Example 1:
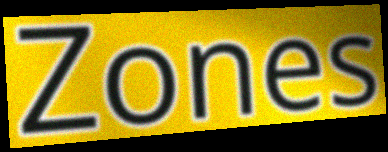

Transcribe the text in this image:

Zones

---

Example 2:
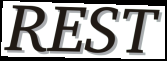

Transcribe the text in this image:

REST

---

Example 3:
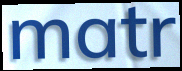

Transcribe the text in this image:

matr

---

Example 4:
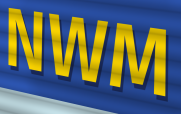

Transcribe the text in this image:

NWM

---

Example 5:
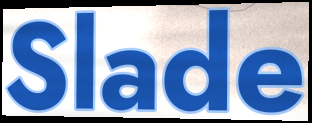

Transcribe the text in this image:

Slade